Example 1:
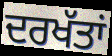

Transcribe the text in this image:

ਦਰਖੱਤਾਂ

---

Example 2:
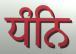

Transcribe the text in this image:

ਧੰਨਿ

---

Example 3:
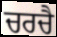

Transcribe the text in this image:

ਚਰਚੈ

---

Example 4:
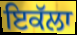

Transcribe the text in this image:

ਇਕੱਲਾ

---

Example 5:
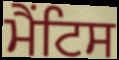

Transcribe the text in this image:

ਮੈਂਟਿਸ